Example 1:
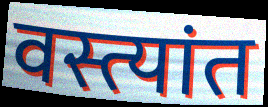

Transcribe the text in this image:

वस्त्यांत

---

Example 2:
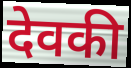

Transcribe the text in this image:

देवकी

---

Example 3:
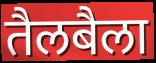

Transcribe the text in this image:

तैलबैला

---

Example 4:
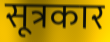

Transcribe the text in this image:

सूत्रकार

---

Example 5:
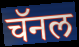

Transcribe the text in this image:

चॅनल